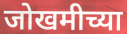
जोखमीच्या